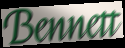
Bennett